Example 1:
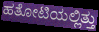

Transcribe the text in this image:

ಹತೋಟಿಯಲ್ಲಿತ್ತು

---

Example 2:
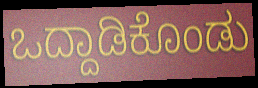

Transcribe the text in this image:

ಒದ್ದಾಡಿಕೊಂಡು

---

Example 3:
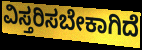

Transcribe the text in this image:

ವಿಸ್ತರಿಸಬೇಕಾಗಿದೆ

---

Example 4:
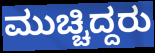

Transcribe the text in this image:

ಮುಚ್ಚಿದ್ದರು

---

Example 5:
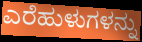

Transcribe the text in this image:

ಎರೆಹುಳುಗಳನ್ನು